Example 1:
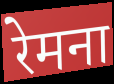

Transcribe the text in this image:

रेमना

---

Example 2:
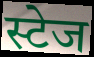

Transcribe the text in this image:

स्टेज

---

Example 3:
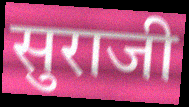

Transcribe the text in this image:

सुराजी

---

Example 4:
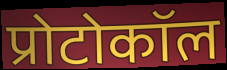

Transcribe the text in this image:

प्रोटोकॉल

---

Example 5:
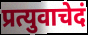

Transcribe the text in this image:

प्रत्युवाचेदं